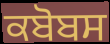
ਕਬੋਬਸ